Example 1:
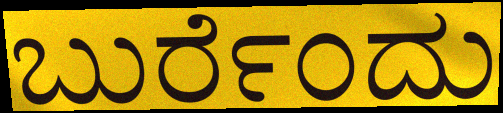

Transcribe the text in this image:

ಬುರ್ರೆಂದು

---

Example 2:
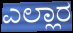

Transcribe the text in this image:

ಎಲ್ಲಾರ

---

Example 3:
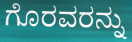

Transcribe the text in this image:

ಗೊರವರನ್ನು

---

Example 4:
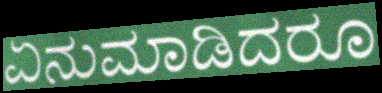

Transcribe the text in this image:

ಏನುಮಾಡಿದರೂ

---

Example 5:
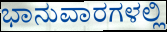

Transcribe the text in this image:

ಭಾನುವಾರಗಳಲ್ಲಿ